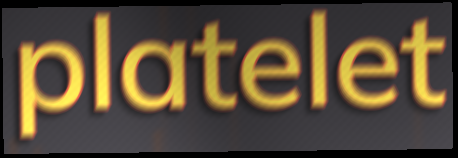
platelet